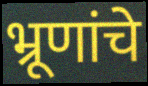
भ्रूणांचे